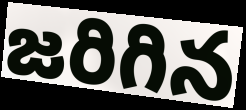
జరిగిన